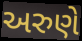
અરુણે